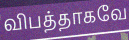
விபத்தாகவே